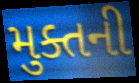
મુક્તની